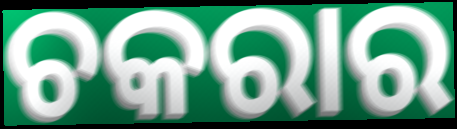
ଚକରାର